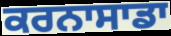
ਕਰਨਾਸਾਡਾ